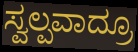
ಸ್ವಲ್ಪವಾದ್ರೂ